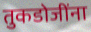
तुकडोजींना